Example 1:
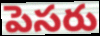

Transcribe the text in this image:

పెసరు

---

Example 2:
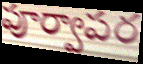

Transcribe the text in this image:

పూర్వాపర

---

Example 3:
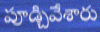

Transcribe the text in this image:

పూడ్చివేశారు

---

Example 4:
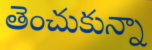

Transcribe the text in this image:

తెంచుకున్నా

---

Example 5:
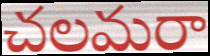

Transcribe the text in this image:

చలమరా